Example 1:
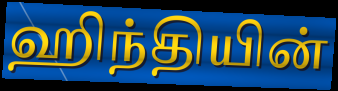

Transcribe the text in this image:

ஹிந்தியின்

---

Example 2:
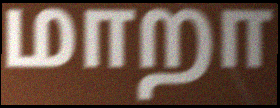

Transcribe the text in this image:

மாறா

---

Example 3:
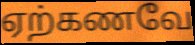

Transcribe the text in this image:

ஏற்கணவே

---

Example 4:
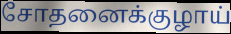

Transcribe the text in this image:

சோதனைக்குழாய்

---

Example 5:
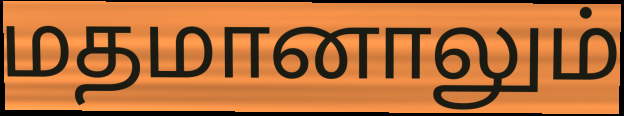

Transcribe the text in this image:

மதமானாலும்